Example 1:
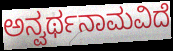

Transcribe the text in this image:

ಅನ್ವರ್ಥನಾಮವಿದೆ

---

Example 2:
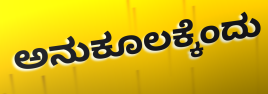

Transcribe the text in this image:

ಅನುಕೂಲಕ್ಕೆಂದು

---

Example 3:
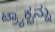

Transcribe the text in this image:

ಟ್ರ್ಯಾಕ್ಟನ್ನು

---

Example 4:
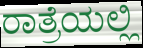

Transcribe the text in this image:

ರಾತ್ರೆಯಲ್ಲಿ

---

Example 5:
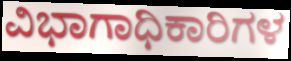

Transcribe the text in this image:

ವಿಭಾಗಾಧಿಕಾರಿಗಳ